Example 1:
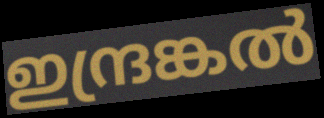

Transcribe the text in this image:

ഇന്ദ്രങ്കൽ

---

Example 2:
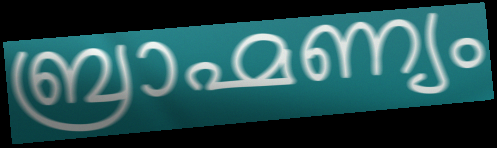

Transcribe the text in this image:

ബ്രാഹ്മണ്യം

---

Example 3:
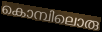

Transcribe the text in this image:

കൊമ്പിലൊരു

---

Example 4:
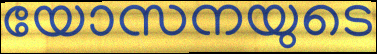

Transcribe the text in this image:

യോസനയുടെ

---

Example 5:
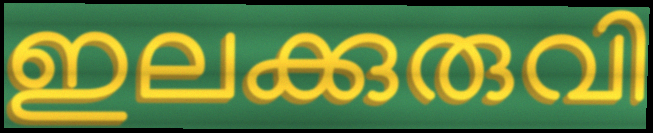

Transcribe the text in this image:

ഇലക്കുരുവി